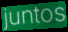
juntos